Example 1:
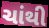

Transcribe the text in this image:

ચાંથી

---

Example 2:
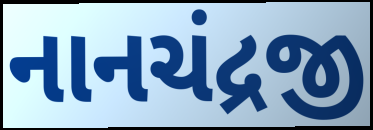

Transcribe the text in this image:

નાનચંદ્રજી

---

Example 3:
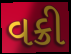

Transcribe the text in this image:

વક્રી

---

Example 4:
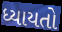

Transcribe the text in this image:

ધ્યાયતો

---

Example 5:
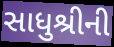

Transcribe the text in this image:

સાધુશ્રીની